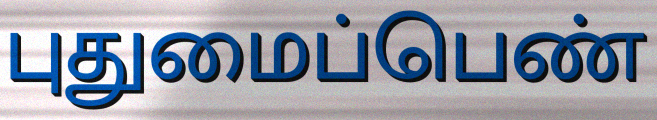
புதுமைப்பெண்